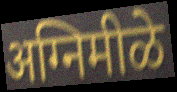
अग्निमीळे